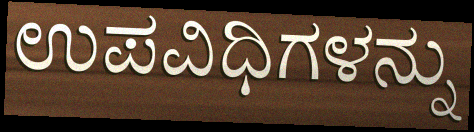
ಉಪವಿಧಿಗಳನ್ನು